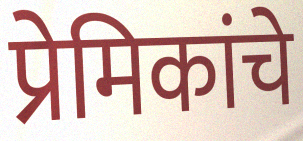
प्रेमिकांचे